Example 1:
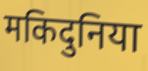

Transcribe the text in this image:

मकिदुनिया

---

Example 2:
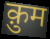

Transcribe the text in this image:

क़ुम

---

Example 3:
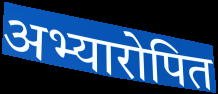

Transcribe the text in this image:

अभ्यारोपित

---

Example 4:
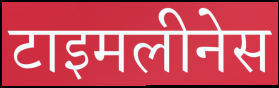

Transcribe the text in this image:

टाइमलीनेस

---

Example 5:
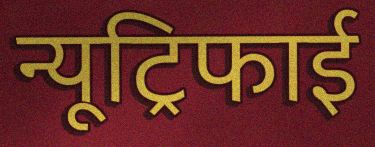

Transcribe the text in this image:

न्यूट्रिफाई